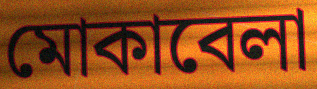
মোকাবেলা